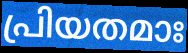
പ്രിയതമാഃ